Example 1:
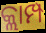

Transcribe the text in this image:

କ୍ଲାମ୍ପ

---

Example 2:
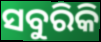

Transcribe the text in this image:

ସବୁରିକି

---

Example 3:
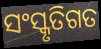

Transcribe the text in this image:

ସଂସ୍କୃତିଗତ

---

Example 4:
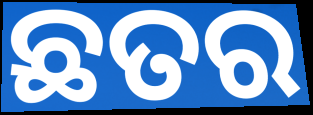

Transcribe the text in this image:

ଛତର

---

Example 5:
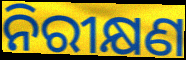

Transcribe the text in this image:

ନିରୀକ୍ଷଣ